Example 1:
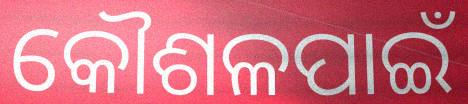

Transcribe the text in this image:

କୌଶଳପାଇଁ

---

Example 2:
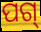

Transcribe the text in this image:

ପଗ୍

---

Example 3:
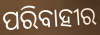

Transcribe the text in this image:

ପରିବାହୀର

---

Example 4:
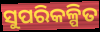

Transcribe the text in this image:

ସୁପରିକଳ୍ପିତ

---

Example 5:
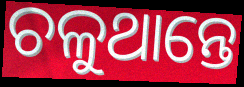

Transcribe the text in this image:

ଚଳୁଥାନ୍ତେ